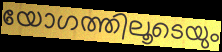
യോഗത്തിലൂടെയും